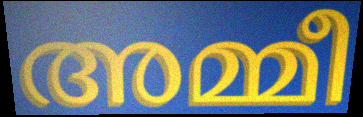
അമ്മീ